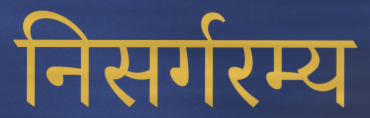
निसर्गरम्य